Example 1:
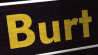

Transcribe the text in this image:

Burt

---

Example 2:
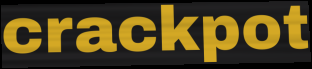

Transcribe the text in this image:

crackpot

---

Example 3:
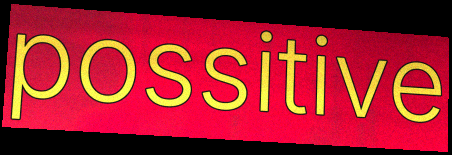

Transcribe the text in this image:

possitive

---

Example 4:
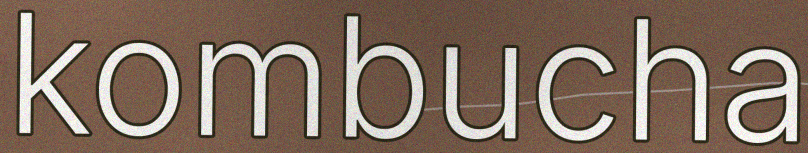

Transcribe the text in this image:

kombucha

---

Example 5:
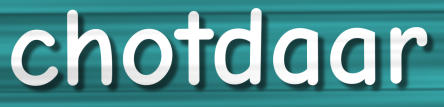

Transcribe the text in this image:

chotdaar